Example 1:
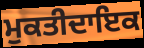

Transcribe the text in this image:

ਮੁਕਤੀਦਾਇਕ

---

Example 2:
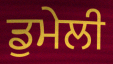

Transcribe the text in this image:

ਡੁਮੇਲੀ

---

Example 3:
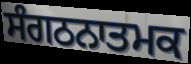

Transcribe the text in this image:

ਸੰਗਠਨਾਤਮਕ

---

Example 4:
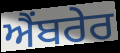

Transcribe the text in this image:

ਐਂਬਰੇਰ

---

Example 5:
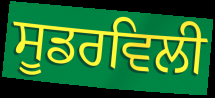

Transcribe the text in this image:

ਸੂਡਰਵਿਲੀ